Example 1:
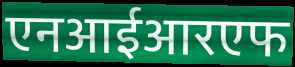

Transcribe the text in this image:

एनआईआरएफ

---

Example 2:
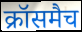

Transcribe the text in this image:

क्रॉसमैच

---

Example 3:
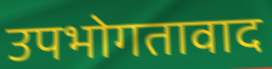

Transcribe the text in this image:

उपभोगतावाद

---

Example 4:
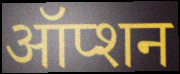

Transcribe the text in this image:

ऑप्शन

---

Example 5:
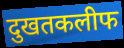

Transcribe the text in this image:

दुखतकलीफ